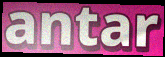
antar